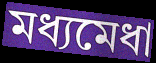
মধ্যমেধা